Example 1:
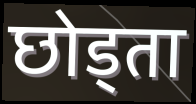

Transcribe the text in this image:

छोड्ता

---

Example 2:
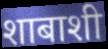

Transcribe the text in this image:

शाबाशी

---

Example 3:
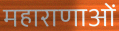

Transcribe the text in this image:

महाराणाओं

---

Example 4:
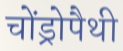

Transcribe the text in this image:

चोंड्रोपैथी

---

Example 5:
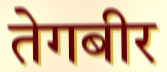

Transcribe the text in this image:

तेगबीर